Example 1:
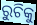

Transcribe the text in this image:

ରୁଚିକୁ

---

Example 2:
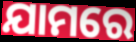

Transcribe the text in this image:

ଯାମରେ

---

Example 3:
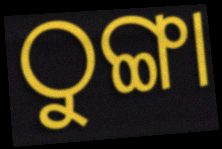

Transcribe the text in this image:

ଠୁଙ୍ଗା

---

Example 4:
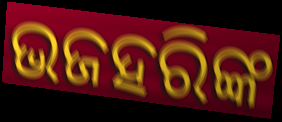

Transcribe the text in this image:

ଭଜହରିଙ୍କ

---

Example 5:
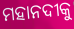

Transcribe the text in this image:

ମହାନଦୀକୁ